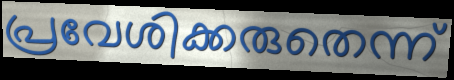
പ്രവേശിക്കരുതെന്ന്